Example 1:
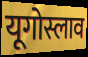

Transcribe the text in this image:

यूगोस्लाव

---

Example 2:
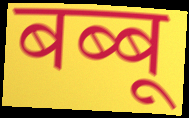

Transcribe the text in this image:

बब्बू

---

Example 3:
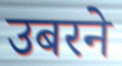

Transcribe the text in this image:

उबरने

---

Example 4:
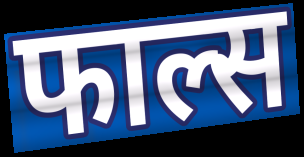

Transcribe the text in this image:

फाल्स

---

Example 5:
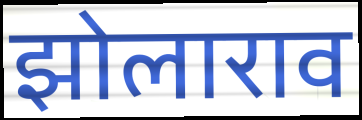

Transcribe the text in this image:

झोलाराव